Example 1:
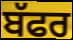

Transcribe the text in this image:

ਬੱਫਰ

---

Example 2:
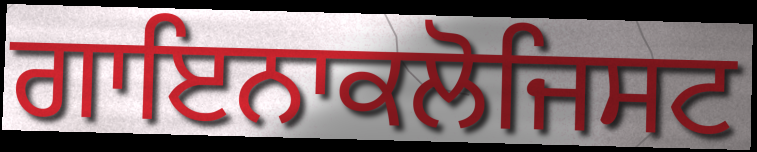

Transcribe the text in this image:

ਗਾਇਨਾਕਲੋਜਿਸਟ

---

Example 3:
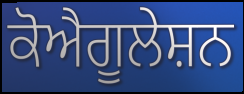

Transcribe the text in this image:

ਕੋਐਗੂਲੇਸ਼ਨ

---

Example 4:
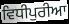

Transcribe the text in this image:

ਵਿਧੀਪੁਰੀਆ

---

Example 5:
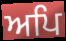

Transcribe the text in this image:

ਅਪਿ